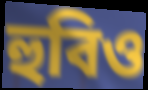
হুবিও